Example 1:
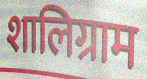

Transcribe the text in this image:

शालिग्राम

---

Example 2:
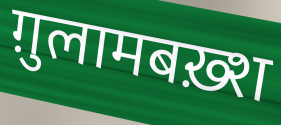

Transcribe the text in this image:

ग़ुलामबख़्श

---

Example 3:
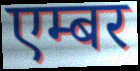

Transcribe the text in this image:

एम्बर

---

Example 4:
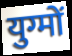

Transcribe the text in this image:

युग्मों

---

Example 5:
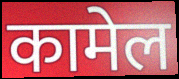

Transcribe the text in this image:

कामेल